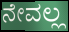
ನೇವಲ್ಲ